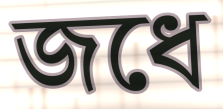
জধে